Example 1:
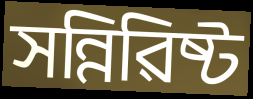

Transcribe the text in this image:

সন্নিৱিষ্ট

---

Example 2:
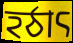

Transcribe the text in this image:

হঠাৎ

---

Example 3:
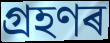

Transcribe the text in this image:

গ্ৰহণৰ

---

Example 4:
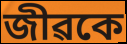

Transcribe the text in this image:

জীৱকে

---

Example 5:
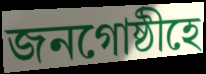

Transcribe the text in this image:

জনগোষ্ঠীহে